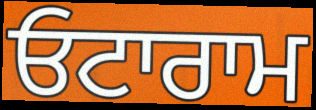
ਓਟਾਰਾਮ